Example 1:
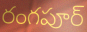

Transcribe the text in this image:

రంగపూర్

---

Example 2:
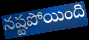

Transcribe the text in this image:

నష్టపోయింది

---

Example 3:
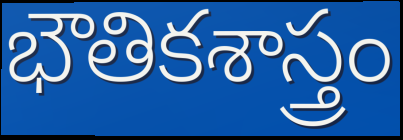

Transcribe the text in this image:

భౌతికశాస్త్రం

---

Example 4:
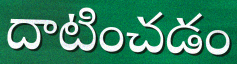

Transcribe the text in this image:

దాటించడం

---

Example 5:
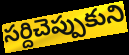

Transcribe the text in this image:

సర్దిచెప్పుకుని